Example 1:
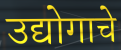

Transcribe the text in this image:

उद्योगाचे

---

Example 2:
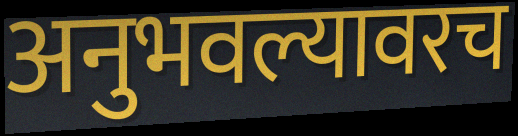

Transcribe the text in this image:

अनुभवल्यावरच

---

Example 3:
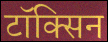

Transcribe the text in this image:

टॉक्सिन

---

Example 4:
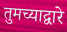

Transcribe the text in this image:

तुमच्याद्वारे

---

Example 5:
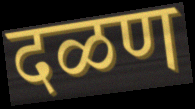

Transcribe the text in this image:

दळण